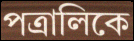
পত্রালিকে